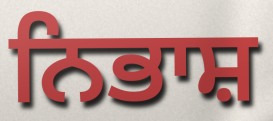
ਨਿਭਾਸ਼